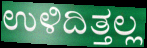
ಉಳಿದಿತ್ತಲ್ಲ